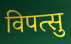
विपत्सु